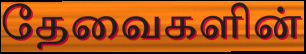
தேவைகளின்